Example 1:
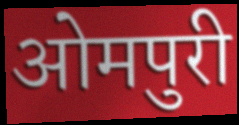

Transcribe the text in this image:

ओमपुरी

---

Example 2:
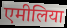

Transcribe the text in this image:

एमीलिया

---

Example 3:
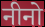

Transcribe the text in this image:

नीनो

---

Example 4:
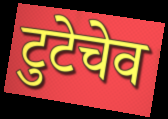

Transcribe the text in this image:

टुटेचेव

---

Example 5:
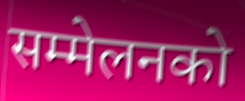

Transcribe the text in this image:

सम्मेलनको